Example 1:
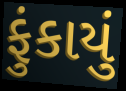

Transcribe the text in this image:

ફુંકાયું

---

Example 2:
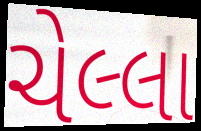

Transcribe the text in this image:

ચેલ્લા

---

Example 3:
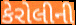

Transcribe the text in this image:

કેરોલીની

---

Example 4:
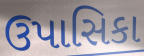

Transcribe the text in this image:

ઉપાસિકા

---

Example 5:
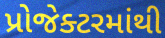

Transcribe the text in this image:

પ્રોજેક્ટરમાંથી